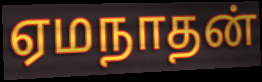
ஏமநாதன்